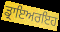
ਡ੍ਰਾਇਅਰਇਹ